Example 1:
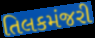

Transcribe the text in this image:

તિલકમંજરી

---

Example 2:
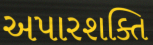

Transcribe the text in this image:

અપારશક્તિ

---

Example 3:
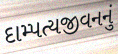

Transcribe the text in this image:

દામ્પત્યજીવનનું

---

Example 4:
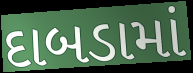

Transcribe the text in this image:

દાબડામાં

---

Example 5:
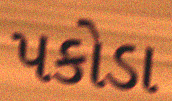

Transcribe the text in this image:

પકોડા